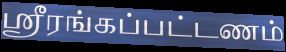
ஸ்ரீரங்கப்பட்டணம்